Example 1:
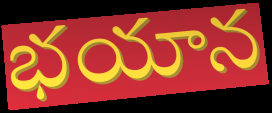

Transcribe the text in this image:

భయాన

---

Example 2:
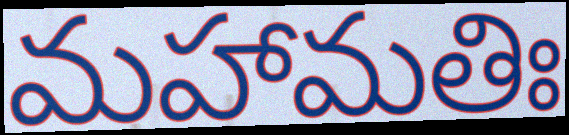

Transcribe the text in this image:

మహామతిః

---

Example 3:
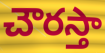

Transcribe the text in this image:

చౌరస్తా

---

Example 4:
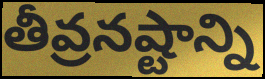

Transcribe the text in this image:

తీవ్రనష్టాన్ని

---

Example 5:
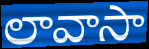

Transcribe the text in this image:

లావాసా